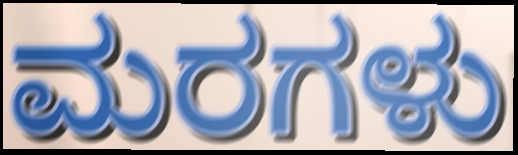
ಮರಗಳು